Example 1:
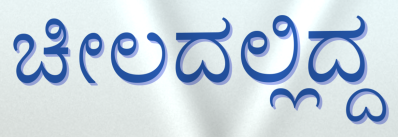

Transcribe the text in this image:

ಚೀಲದಲ್ಲಿದ್ದ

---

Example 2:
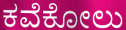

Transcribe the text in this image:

ಕವೆಕೋಲು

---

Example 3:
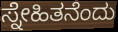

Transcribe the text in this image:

ಸ್ನೇಹಿತನೆಂದು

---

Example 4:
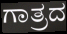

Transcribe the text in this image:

ಗಾತ್ರದ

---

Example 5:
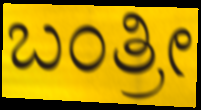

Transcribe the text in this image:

ಬಂತ್ರೀ